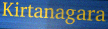
Kirtanagara